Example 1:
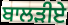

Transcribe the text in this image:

ਬਾਲੜੀਏ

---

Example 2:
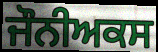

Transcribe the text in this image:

ਜੌਨੀਅਕਸ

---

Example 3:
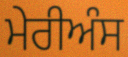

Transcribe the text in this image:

ਮੇਰੀਅੰਸ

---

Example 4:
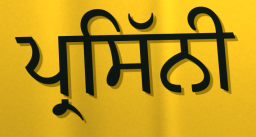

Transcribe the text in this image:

ਪ੍ਰਸਿੱਨੀ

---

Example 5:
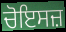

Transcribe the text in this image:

ਚੋਇਸਜ਼